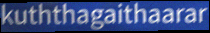
kuththagaithaarar